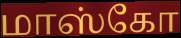
மாஸ்கோ